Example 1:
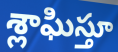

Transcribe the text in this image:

శ్లాఘిస్తూ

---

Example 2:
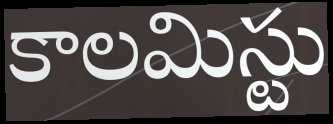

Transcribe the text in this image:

కాలమిస్టు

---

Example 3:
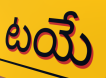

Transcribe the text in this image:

టయే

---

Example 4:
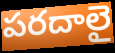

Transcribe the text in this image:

పరదాలై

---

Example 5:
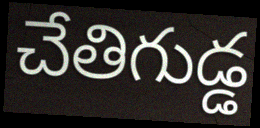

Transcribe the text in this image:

చేతిగుడ్డ